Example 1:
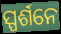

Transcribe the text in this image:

ସ୍ପର୍ଶନେ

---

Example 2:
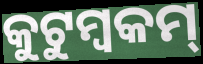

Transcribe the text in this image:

କୁଟୁମ୍ବକମ୍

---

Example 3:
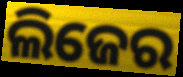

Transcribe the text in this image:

ଲିଜେର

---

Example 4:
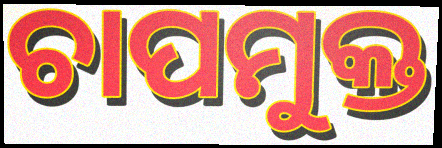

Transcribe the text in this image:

ଚାପମୁକ୍ତ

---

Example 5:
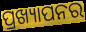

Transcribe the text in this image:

ପ୍ରଖ୍ୟାପନର